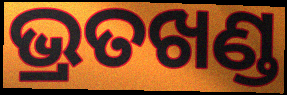
ଭ୍ରତଖଣ୍ଡ